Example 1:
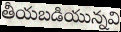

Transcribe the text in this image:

తీయబడియున్నవి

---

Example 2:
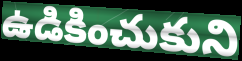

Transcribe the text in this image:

ఉడికించుకుని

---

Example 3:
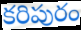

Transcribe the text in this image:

కరిపురం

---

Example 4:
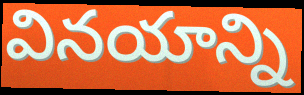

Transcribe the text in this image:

వినయాన్ని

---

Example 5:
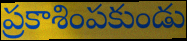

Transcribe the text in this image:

ప్రకాశింపకుండు